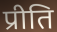
प्रीति